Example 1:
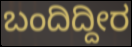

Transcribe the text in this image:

ಬಂದಿದ್ದೀರ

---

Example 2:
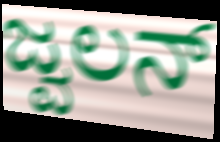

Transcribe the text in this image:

ಜ್ವಲನ್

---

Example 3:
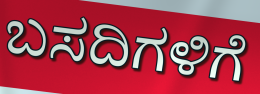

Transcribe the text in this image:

ಬಸದಿಗಳಿಗೆ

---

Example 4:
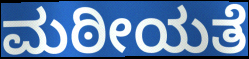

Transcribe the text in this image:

ಮಠೀಯತೆ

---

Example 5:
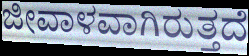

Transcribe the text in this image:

ಜೀವಾಳವಾಗಿರುತ್ತದೆ